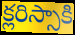
క్లరిస్సాకి